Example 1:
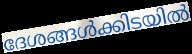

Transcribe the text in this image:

ദേശങ്ങൾക്കിടയിൽ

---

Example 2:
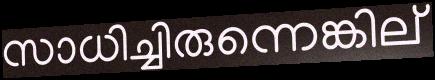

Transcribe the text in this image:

സാധിച്ചിരുന്നെങ്കില്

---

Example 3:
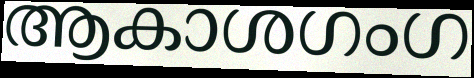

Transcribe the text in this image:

ആകാശഗംഗ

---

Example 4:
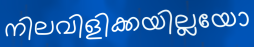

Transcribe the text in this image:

നിലവിളിക്കയില്ലയോ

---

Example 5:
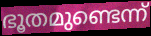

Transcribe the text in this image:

ഭൂതമുണ്ടെന്ന്